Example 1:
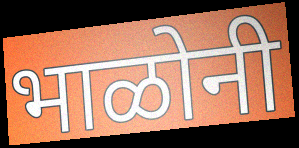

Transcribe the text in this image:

भाळोनी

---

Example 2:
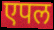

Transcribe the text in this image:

एपल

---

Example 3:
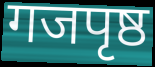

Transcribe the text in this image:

गजपृष्ठ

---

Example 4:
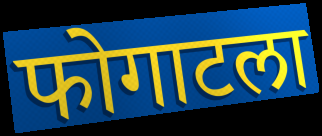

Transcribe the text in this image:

फोगाटला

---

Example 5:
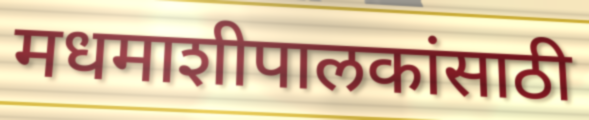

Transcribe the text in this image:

मधमाशीपालकांसाठी